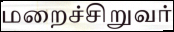
மறைச்சிறுவர்